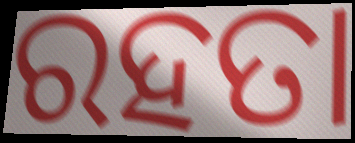
ରହତା